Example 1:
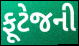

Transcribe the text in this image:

ફૂટેજની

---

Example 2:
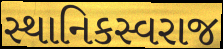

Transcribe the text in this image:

સ્થાનિકસ્વરાજ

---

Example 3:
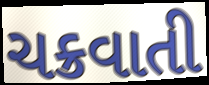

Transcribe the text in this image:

ચક્રવાતી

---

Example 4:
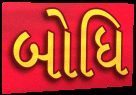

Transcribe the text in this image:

બોધિ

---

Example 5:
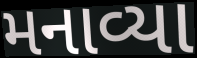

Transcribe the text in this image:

મનાવ્યા